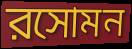
রসোমন